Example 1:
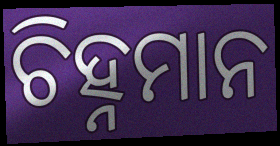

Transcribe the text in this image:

ଚିହ୍ନମାନ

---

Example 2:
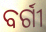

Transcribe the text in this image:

ବର୍ଗୀ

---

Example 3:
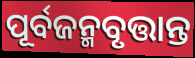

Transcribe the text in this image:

ପୂର୍ବଜନ୍ମବୃତ୍ତାନ୍ତ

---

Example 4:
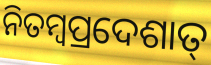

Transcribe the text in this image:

ନିତମ୍ବପ୍ରଦେଶାତ୍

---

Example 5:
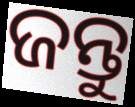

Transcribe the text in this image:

ଜନ୍ତୁ